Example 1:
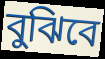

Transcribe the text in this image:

বুঝিবে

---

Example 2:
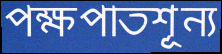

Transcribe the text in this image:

পক্ষপাতশূন্য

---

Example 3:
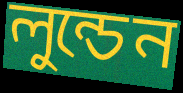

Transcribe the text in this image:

লুন্ডেন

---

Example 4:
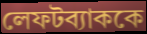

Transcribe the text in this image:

লেফটব্যাককে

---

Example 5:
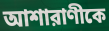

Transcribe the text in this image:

আশারাণীকে